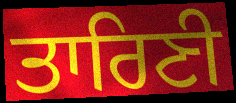
ਤਾਰਿਣੀ